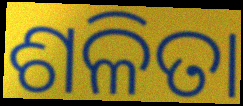
ଶଳିତା